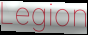
Legion